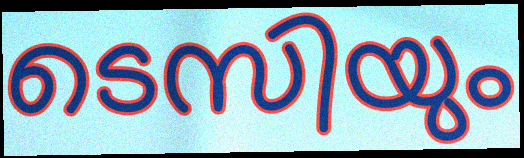
ടെസിയും